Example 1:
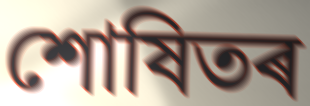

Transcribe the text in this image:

শোষিতৰ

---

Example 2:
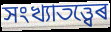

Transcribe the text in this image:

সংখ্যাতত্ত্বেৰ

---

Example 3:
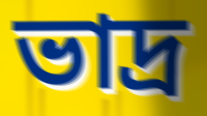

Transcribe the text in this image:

ভাদ্ৰ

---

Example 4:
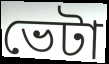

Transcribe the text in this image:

ভেটা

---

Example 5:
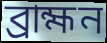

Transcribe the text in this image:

ব্ৰাহ্মন